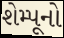
શેમ્પૂનો